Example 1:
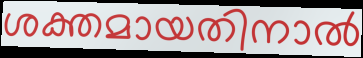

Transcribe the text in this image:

ശക്തമായതിനാൽ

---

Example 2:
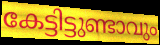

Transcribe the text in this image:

കേട്ടിട്ടുണ്ടാവും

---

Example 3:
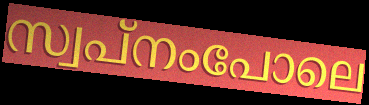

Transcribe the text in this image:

സ്വപ്നംപോലെ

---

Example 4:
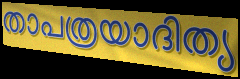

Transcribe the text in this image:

താപത്രയാദിത്യ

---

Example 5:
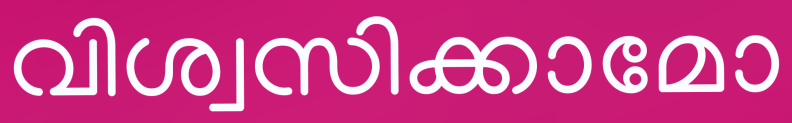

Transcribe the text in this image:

വിശ്വസിക്കാമോ